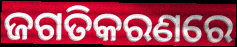
ଜଗତିକରଣରେ